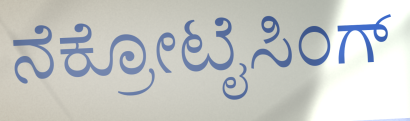
ನೆಕ್ರೋಟೈಸಿಂಗ್